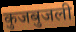
कुजबुजली